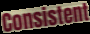
Consistent